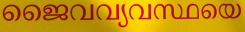
ജൈവവ്യവസ്ഥയെ